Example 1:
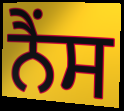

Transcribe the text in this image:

ਨੈਂਸ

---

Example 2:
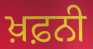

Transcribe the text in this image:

ਖ਼ਫ਼ਨੀ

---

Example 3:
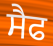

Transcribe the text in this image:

ਸੈਫ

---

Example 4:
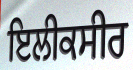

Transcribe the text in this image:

ਇਲੀਕਸੀਰ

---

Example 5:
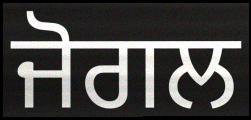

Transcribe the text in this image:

ਜੋਗਲ